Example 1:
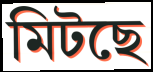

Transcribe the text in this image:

মিটছে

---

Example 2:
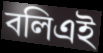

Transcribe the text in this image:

বলিএই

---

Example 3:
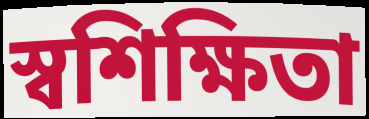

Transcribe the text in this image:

স্বশিক্ষিতা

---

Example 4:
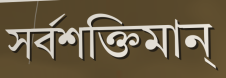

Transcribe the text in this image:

সর্বশক্তিমান্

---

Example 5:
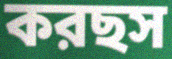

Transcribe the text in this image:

করছস